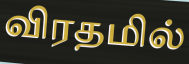
விரதமில்